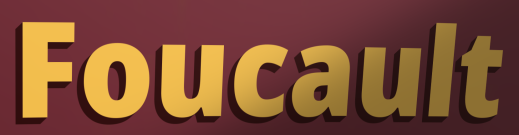
Foucault